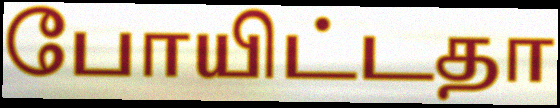
போயிட்டதா